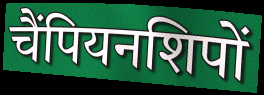
चैंपियनशिपों